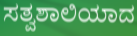
ಸತ್ವಶಾಲಿಯಾದ